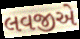
લવજીએ